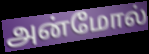
அன்மோல்